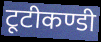
टूटीकण्डी